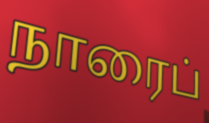
நாரைப்